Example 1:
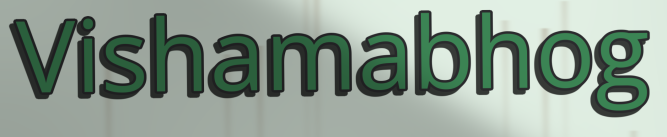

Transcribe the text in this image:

Vishamabhog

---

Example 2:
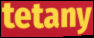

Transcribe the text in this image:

tetany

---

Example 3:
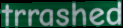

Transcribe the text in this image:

trrashed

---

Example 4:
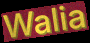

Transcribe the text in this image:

Walia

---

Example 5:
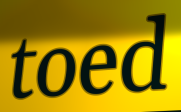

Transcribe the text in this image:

toed